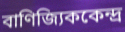
বাণিজ্যিককেন্দ্র